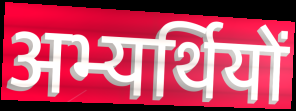
अभ्यर्थियों